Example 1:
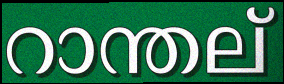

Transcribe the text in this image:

റാന്തല്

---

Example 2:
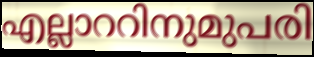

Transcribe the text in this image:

എല്ലാററിനുമുപരി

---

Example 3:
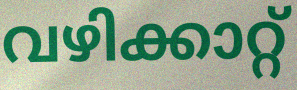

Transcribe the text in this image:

വഴിക്കാറ്റ്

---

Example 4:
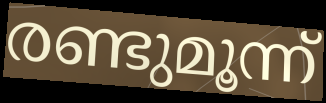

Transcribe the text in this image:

രണ്ടുമൂന്ന്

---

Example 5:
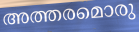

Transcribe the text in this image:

അത്തരമൊരു